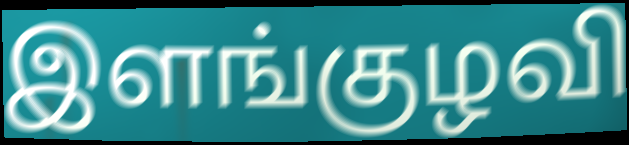
இளங்குழவி